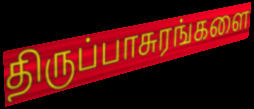
திருப்பாசுரங்களை